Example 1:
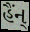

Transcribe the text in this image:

હૈંન્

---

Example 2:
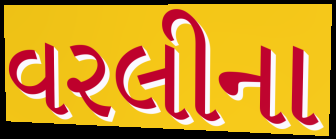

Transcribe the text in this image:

વરલીના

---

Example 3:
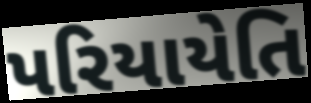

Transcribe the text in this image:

પરિયાયેતિ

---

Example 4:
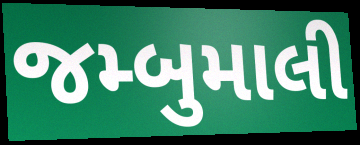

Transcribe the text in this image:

જમ્બુમાલી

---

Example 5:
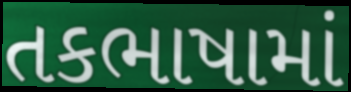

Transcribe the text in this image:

તકભાષામાં